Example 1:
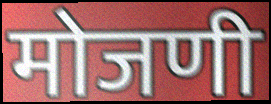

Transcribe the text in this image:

मोजणी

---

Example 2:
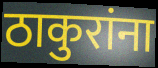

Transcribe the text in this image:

ठाकुरांना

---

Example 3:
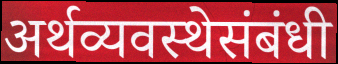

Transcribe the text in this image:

अर्थव्यवस्थेसंबंधी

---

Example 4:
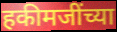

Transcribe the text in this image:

हकीमजींच्या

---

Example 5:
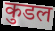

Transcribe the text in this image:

कुडल